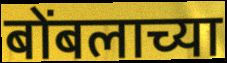
बोंबलाच्या